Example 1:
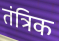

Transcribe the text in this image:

तंत्रिक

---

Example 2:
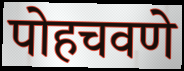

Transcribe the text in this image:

पोहचवणे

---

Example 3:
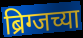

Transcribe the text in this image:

ब्रिग्जच्या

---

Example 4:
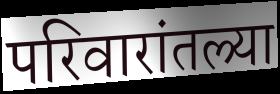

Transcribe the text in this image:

परिवारांतल्या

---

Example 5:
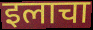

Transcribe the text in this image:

इलाचा